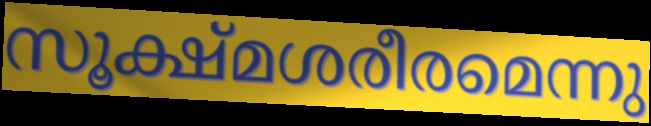
സൂക്ഷ്മശരീരമെന്നു